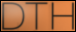
DTH